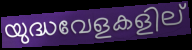
യുദ്ധവേളകളില്